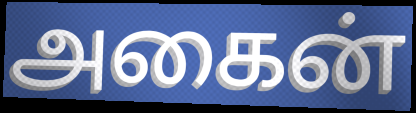
அகைன்